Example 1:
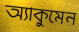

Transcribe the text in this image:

অ্যাকুমেন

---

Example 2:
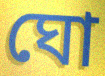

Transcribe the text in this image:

ঘো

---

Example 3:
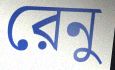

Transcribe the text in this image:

রেনু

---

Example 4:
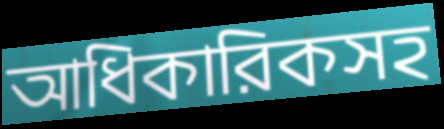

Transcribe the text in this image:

আধিকারিকসহ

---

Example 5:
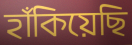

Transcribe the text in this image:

হাঁকিয়েছি